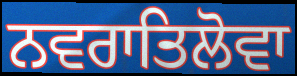
ਨਵਰਾਤਿਲੋਵਾ